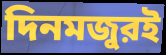
দিনমজুরই